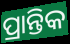
ପ୍ରାନ୍ତିକ